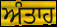
ਅੰਤਾਹ